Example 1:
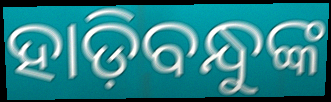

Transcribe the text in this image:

ହାଡ଼ିବନ୍ଧୁଙ୍କ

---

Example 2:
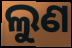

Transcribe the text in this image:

ଲୁଣ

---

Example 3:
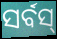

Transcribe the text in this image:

ସର୍ବସ୍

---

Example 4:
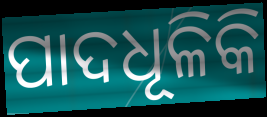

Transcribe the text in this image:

ପାଦଧୂଳିକି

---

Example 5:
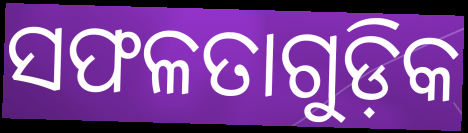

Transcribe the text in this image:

ସଫଳତାଗୁଡ଼ିକ